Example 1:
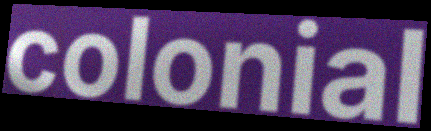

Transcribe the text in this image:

colonial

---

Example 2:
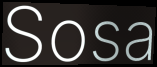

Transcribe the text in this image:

Sosa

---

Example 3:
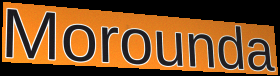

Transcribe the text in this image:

Morounda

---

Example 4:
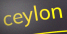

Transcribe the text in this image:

ceylon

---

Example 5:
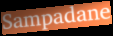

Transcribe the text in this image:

Sampadane